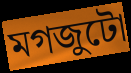
মগজুটো